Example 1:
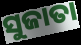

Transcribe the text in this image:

ସୁଜାତା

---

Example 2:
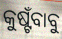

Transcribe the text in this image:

କୁଷ୍ଟଁବାବୁ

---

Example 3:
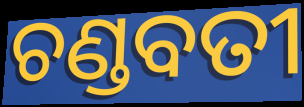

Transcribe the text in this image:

ଚଣ୍ଡବତୀ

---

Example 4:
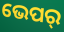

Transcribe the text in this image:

ଭେପର୍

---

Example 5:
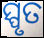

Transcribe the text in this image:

ସ୍ପୃତ